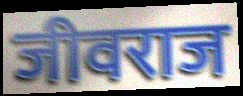
जीवराज